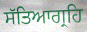
ਸੱਤਿਆਗ੍ਰਹਿ